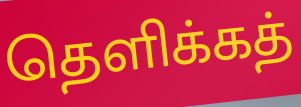
தெளிக்கத்